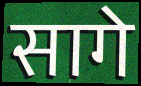
सागे